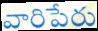
వారిపేరు